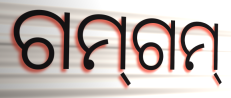
ଗମ୍‌ଗମ୍